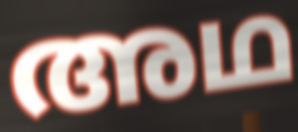
അഥ